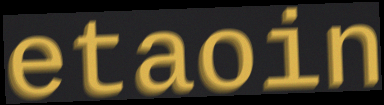
etaoin